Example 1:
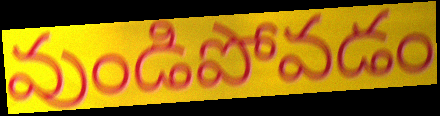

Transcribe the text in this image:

వుండిపోవడం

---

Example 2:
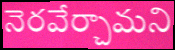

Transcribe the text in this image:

నెరవేర్చామని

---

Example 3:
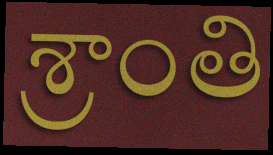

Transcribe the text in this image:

శ్రాంతి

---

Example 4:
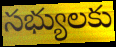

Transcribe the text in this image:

సభ్యులకు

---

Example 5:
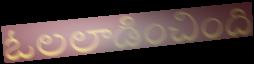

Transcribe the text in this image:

ఓలలాడించింది